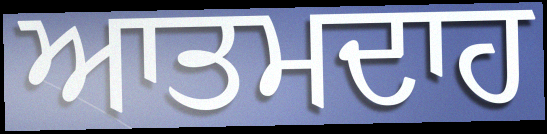
ਆਤਮਦਾਹ